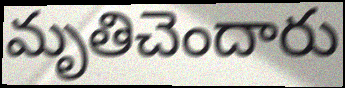
మృతిచెందారు